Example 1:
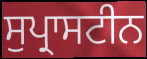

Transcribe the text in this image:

ਸੁਪ੍ਰਾਸਟੀਨ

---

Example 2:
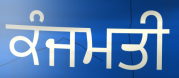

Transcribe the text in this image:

ਕੰਜਮਤੀ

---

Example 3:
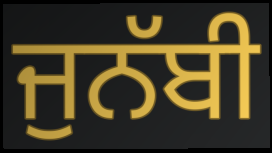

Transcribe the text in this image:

ਜੁਨੱਬੀ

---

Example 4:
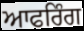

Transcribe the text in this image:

ਆਫਰਿੰਗ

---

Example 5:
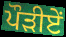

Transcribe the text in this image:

ਪੌੜੀਏਂ